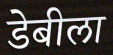
डेबीला